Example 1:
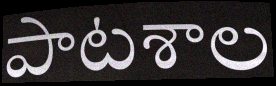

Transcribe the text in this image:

పాటశాల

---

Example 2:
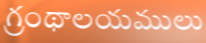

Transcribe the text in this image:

గ్రంథాలయములు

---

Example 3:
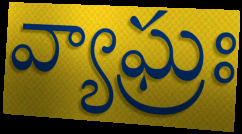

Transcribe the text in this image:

వ్యాఘ్రః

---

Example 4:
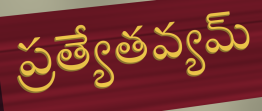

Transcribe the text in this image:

ప్రత్యేతవ్యమ్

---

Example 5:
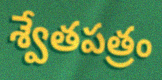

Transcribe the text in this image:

శ్వేతపత్రం